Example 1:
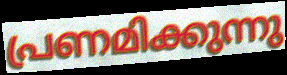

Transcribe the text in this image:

പ്രണമിക്കുന്നു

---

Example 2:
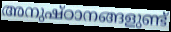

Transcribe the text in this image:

അനുഷ്ഠാനങ്ങളുണ്ട്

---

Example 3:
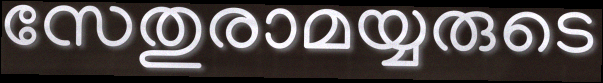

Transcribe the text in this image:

സേതുരാമയ്യരുടെ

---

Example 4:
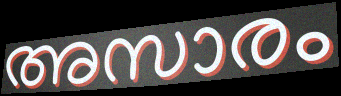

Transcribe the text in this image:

അസാരം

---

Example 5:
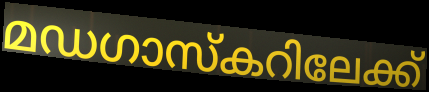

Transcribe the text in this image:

മഡഗാസ്കറിലേക്ക്